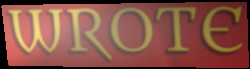
WROTE